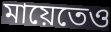
মায়েতেও